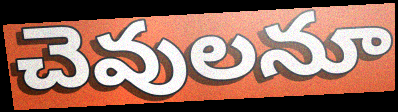
చెవులనూ